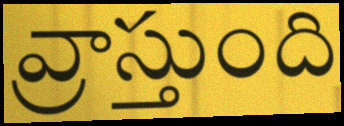
వ్రాస్తుంది